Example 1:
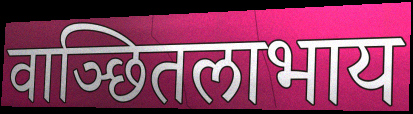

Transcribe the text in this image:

वाञ्छितलाभाय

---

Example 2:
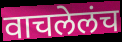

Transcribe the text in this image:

वाचलेलंच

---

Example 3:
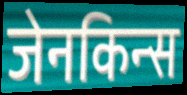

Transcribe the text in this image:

जेनकिन्स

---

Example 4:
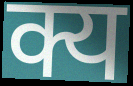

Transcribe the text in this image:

क्य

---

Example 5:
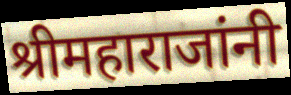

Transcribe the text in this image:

श्रीमहाराजांनी